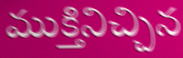
ముక్తినిచ్చిన